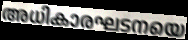
അധികാരഘടനയെ